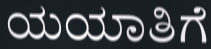
ಯಯಾತಿಗೆ